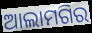
ଆଲାମଗିର